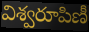
విశ్వరూపిణీ